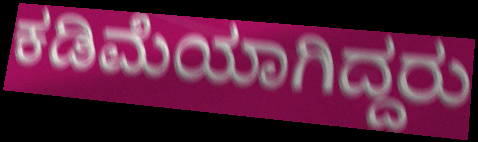
ಕಡಿಮೆಯಾಗಿದ್ದರು